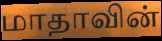
மாதாவின்